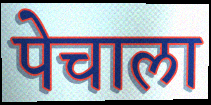
पेचाला